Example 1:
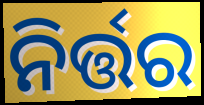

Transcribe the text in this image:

ନିର୍ତ୍ତର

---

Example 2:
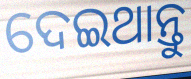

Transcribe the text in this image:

ଦେଇଥାନ୍ତୁ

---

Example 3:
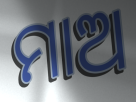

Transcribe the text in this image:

ମାଅ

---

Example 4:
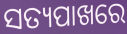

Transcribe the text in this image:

ସତ୍ୟପାଖରେ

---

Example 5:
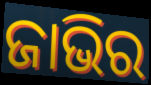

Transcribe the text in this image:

ଜାଭିର